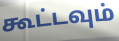
கூட்டவும்